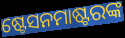
ଷ୍ଟେସନମାଷ୍ଟରଙ୍କ